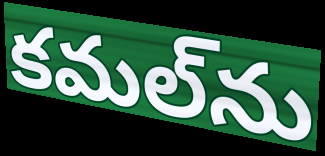
కమల్‌ను